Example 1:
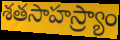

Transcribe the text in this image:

శతసాహస్ర్యాం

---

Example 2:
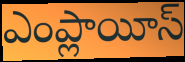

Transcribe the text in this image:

ఎంప్లాయీస్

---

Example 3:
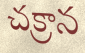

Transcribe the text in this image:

చక్రాన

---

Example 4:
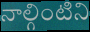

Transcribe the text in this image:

నాల్గింటిని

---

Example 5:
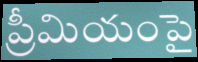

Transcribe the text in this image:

ప్రీమియంపై